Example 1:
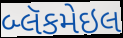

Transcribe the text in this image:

બ્લૅકમેઇલ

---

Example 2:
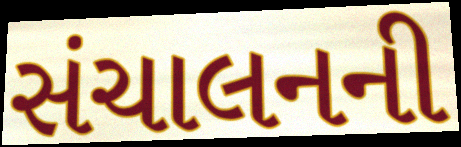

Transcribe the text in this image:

સંચાલનની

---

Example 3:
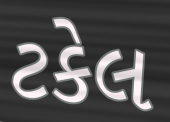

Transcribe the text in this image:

ટકેલ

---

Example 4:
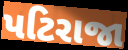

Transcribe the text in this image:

પટિરાજા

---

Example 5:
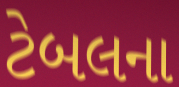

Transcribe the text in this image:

ટેબલના